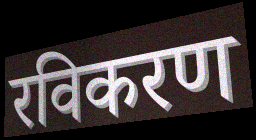
रविकरण